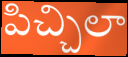
పిచ్చిలా